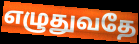
எழுதுவதே